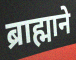
ब्राह्माने